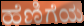
ಹೆಣಿಗೆಯ